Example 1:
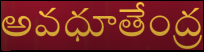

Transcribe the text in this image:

అవధూతేంద్ర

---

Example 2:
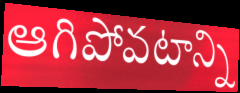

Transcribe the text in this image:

ఆగిపోవటాన్ని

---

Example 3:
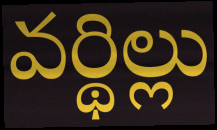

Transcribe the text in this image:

వర్థిల్లు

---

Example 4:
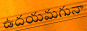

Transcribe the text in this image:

ఉదయమగునా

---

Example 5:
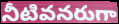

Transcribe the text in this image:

నీటివనరుగా